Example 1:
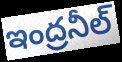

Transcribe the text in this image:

ఇంద్రనీల్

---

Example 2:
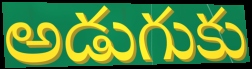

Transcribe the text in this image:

అడుగుకు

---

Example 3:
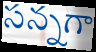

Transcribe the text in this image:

సన్నగా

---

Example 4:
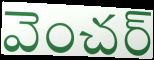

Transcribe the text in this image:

వెంచర్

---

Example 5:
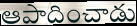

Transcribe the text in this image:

ఆపాదించాడు